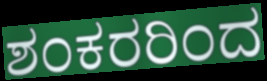
ಶಂಕರರಿಂದ